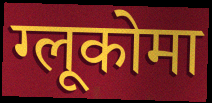
ग्लूकोमा